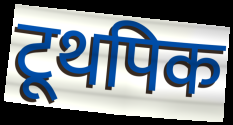
टूथपिक